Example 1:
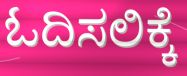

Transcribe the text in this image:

ಓದಿಸಲಿಕ್ಕೆ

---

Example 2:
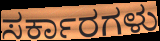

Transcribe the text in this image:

ಸರ್ಕಾರಗಳು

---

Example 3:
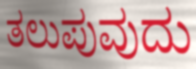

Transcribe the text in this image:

ತಲುಪುವುದು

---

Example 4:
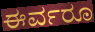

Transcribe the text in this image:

ಈರ್ವರೂ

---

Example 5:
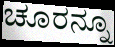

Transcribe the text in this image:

ಚೂರನ್ನೂ